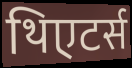
थिएटर्स